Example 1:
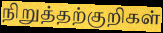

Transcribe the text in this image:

நிறுத்தற்குறிகள்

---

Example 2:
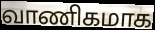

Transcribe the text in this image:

வாணிகமாக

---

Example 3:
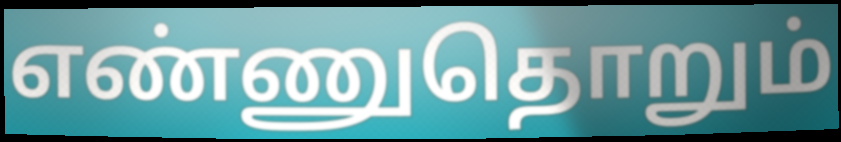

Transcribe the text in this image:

எண்ணுதொறும்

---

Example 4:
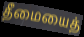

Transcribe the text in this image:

தீமையைத்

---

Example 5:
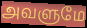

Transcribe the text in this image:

அவளுமே